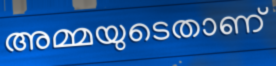
അമ്മയുടെതാണ്